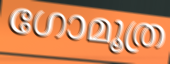
ഗോമൂത്ര